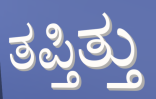
ತಪ್ತಿತ್ತು